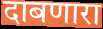
दाबणारा